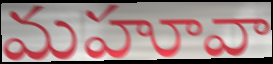
మహూవా